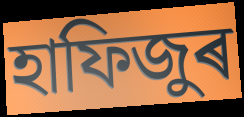
হাফিজুৰ